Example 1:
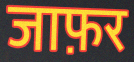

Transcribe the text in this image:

जाफ़र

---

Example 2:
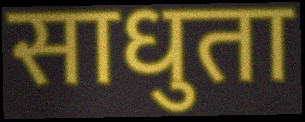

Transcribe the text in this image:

साधुता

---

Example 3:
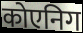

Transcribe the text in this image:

कोएनिग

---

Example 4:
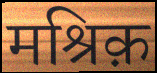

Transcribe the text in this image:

मश्रिक़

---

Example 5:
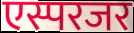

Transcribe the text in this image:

एस्परजर